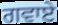
ਗਵਾਏ